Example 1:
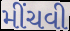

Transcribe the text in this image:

મીંચવી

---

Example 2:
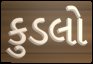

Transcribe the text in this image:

કુડલો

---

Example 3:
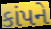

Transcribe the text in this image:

કાંપને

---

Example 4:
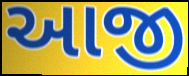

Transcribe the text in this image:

આજી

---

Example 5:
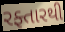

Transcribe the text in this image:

રફ્તારથી